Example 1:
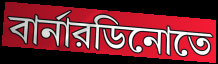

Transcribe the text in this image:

বার্নারডিনোতে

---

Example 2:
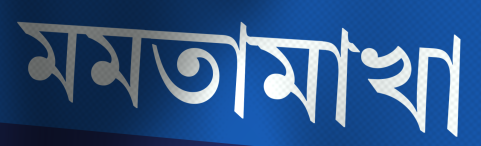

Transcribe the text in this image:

মমতামাখা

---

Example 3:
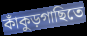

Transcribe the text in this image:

কাঁকুড়গাছিতে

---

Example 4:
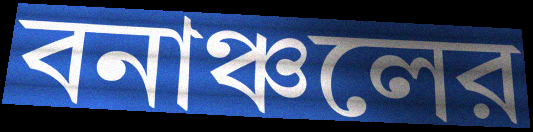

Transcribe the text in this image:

বনাঞ্চলের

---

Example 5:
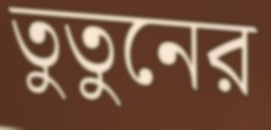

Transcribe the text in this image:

তুতুনের